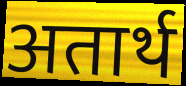
अतार्थ